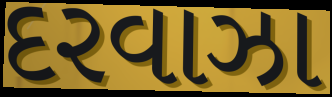
દરવાઝા